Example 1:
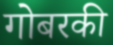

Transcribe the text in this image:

गोबरकी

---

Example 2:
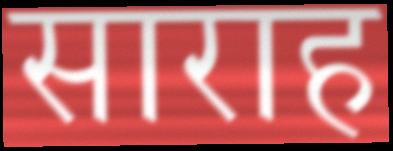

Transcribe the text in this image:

साराह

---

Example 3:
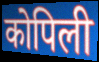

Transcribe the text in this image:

कोपिली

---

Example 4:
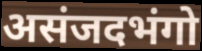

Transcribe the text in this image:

असंजदभंगो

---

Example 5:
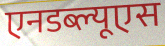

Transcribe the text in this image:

एनडब्ल्यूएस